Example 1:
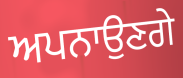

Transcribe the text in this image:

ਅਪਨਾਉਣਗੇ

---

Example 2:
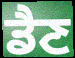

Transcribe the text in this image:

ਡੈਣ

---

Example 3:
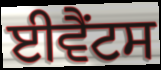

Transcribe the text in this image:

ਈਵੈਂਟਸ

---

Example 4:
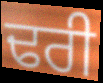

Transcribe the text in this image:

ਢਰੀ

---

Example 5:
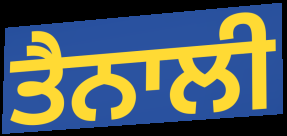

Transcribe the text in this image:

ਤੈਨਾਲੀ